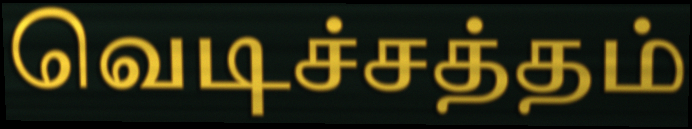
வெடிச்சத்தம்